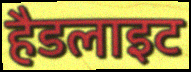
हैडलाइट